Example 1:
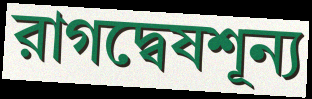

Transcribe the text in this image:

রাগদ্বেষশূন্য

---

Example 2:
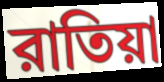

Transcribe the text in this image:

রাতিয়া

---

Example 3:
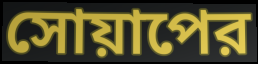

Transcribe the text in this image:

সোয়াপের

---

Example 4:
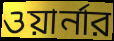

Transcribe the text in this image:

ওয়ার্নার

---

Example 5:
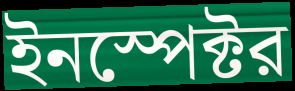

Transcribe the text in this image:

ইনস্পেক্টর